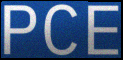
PCE